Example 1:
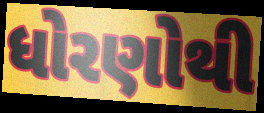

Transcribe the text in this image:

ધોરણોથી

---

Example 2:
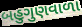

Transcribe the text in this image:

બહુગુણવાળા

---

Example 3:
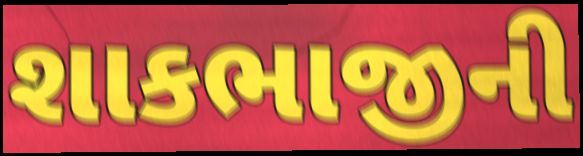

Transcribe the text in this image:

શાકભાજીની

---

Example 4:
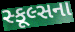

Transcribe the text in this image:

સ્કૂલ્સના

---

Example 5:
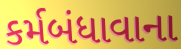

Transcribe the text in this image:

કર્મબંધાવાના